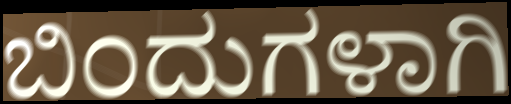
ಬಿಂದುಗಳಾಗಿ